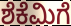
ಶೆಕೆಮಿಗೆ